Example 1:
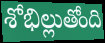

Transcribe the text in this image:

శోభిల్లుతోంది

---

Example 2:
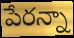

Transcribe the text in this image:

పేరన్నా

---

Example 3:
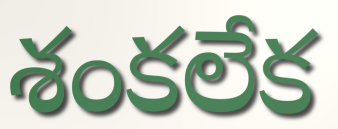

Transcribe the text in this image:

శంకలేక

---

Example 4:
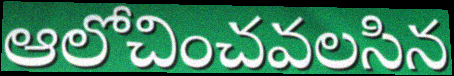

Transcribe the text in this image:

ఆలోచించవలసిన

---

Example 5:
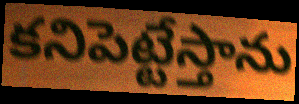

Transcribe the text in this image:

కనిపెట్టేస్తాను